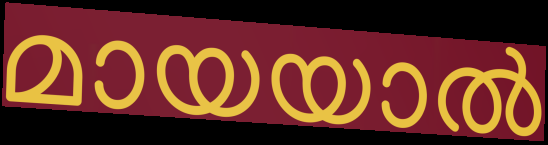
മായയാൽ